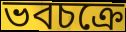
ভবচক্রে